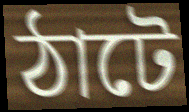
ঠাটে